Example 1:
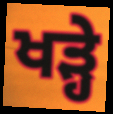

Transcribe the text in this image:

ਖਡ਼੍ਹੇ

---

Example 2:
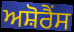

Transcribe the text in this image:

ਅਸ਼ੋਰੈਂਸ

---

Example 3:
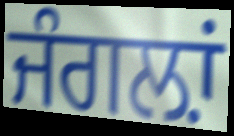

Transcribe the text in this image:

ਜੰਗਲ਼ਾਂ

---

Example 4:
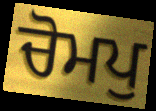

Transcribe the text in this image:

ਚੋਮਪੁ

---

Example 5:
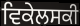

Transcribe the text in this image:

ਵਿਕੇਲਸਕੀ